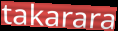
takarara